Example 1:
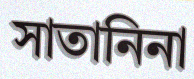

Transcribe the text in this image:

সাতানিনা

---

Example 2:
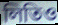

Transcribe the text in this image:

লিতিও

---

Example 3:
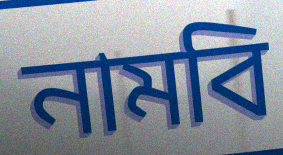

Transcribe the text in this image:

নামবি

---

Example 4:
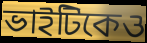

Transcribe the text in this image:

ভাইটিকেও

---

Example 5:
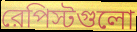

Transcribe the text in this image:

রেপিস্টগুলো